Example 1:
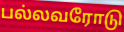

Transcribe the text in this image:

பல்லவரோடு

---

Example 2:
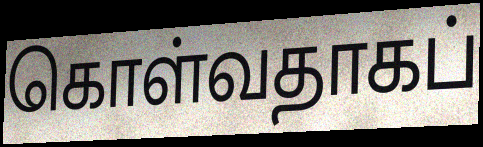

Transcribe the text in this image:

கொள்வதாகப்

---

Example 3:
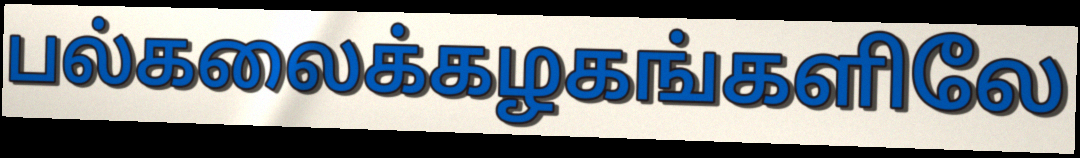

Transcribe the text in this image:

பல்கலைக்கழகங்களிலே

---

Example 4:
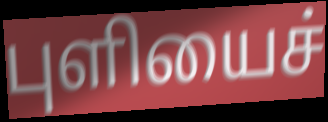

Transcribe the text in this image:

புளியைச்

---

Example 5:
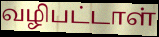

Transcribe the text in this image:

வழிபட்டாள்